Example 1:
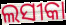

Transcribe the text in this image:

ଲସୀକା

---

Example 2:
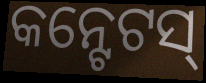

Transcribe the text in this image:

କନ୍ଟେଟସ୍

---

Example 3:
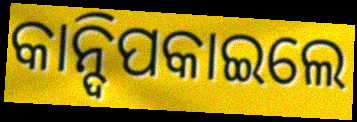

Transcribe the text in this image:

କାନ୍ଦିପକାଇଲେ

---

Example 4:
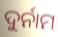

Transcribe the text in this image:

ଦୁର୍ନାମ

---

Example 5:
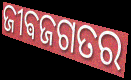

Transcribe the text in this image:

ଜୀଵଜଗତର